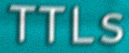
TTLs